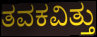
ತವಕವಿತ್ತು